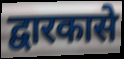
द्वारकासे